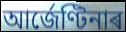
আৰ্জেণ্টিনাৰ